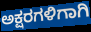
ಅಕ್ಷರಗಳಿಗಾಗಿ